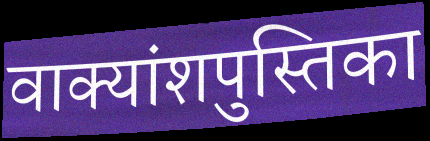
वाक्यांशपुस्तिका